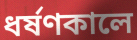
ধর্ষণকালে